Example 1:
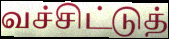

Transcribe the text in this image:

வச்சிட்டுத்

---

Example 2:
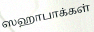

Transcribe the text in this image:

ஸஹாபாக்கள்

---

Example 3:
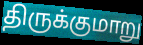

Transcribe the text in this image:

திருக்குமாறு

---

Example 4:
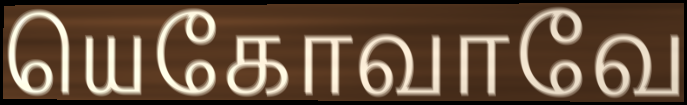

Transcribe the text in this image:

யெகோவாவே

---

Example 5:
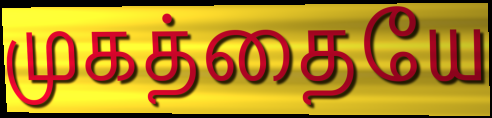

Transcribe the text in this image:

முகத்தையே